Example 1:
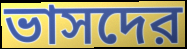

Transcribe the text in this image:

ভাসদের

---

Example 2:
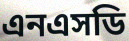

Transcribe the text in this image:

এনএসডি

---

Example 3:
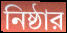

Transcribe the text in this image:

নিষ্ঠার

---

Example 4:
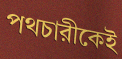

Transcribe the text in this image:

পথচারীকেই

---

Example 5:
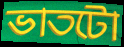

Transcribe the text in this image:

ভাতটো